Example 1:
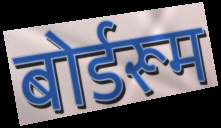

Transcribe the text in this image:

बोर्डरूम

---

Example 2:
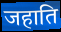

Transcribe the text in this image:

जहाति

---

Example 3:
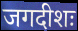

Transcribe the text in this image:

जगदीशः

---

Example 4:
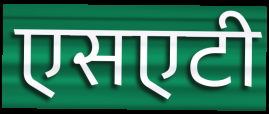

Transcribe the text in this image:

एसएटी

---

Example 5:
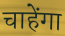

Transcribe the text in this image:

चाहेंगा